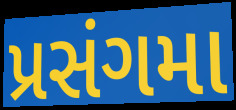
પ્રસંગમા